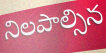
నిలపాల్సిన